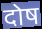
दोष